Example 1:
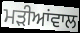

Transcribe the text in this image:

ਮੜੀਆਂਵਾਲ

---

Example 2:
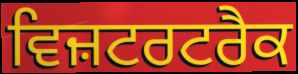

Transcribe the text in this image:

ਵਿਜ਼ਟਰਟਰੈਕ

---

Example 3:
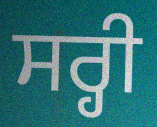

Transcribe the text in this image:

ਸਰ੍ਹੀ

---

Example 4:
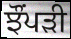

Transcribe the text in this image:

ਝੌਂਪੜੀ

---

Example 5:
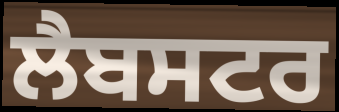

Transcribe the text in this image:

ਲੈਬਸਟਰ